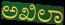
ಅಖಿಲಾ